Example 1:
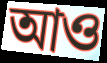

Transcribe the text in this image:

আও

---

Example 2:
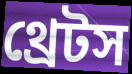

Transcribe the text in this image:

থ্রেটস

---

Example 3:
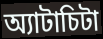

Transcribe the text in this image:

অ্যাটাচিটা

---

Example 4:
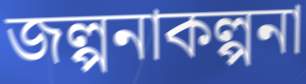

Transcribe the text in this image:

জল্পনাকল্পনা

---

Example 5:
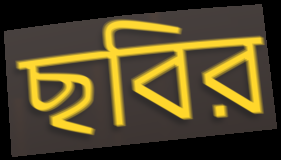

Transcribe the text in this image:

ছবির